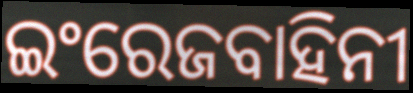
ଇଂରେଜବାହିନୀ